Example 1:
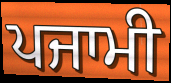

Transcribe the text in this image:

ਪਜਾਮੀ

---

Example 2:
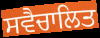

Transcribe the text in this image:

ਸਵੈਚਾਲਿਤ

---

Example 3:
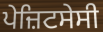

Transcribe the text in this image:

ਪੇਜ਼ਿਟਸੇਸੀ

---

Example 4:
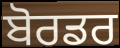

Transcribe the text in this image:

ਬੋਰਡਰ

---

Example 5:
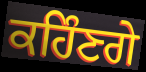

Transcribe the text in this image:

ਕਹਿੰਣਗੇ